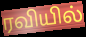
ரவியில்